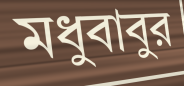
মধুবাবুর